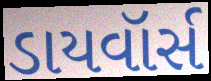
ડાયવૉર્સ